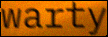
warty